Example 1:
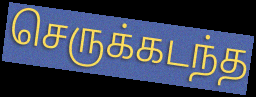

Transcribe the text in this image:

செருக்கடந்த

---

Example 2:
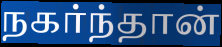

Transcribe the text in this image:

நகர்ந்தான்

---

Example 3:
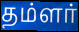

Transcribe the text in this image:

தம்ளர்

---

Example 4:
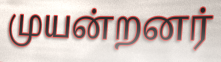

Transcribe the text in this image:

முயன்றனர்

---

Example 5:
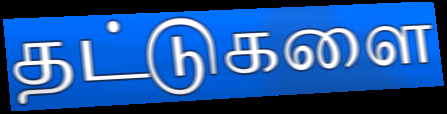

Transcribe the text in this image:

தட்டுகளை